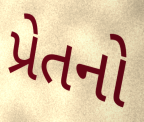
પ્રેતનો